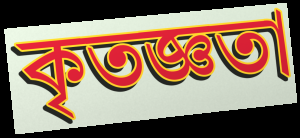
কৃতজ্ঞতা